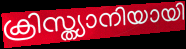
ക്രിസ്ത്യാനിയായി